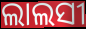
ଲାଲସୀ